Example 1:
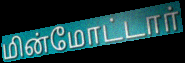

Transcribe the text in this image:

மின்மோட்டார்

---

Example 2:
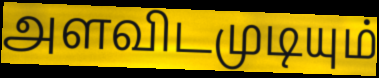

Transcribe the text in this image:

அளவிடமுடியும்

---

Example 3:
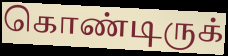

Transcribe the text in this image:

கொண்டிருக்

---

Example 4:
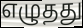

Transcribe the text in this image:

எழுதது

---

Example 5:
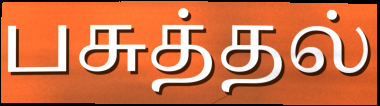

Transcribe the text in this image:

பசுத்தல்